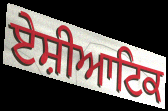
ਏਸ਼ੀਆਟਿਕ